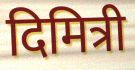
दिमित्री